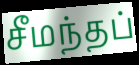
சீமந்தப்